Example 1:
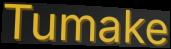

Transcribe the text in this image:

Tumake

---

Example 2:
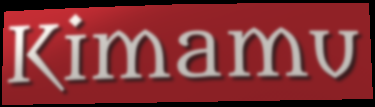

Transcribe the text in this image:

Kimamu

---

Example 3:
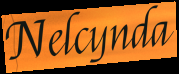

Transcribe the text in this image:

Nelcynda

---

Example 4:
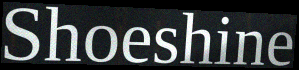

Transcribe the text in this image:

Shoeshine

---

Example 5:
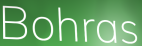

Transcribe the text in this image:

Bohras